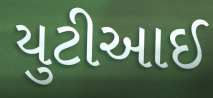
યુટીઆઈ